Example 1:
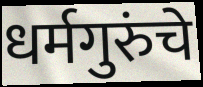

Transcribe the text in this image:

धर्मगुरुंचे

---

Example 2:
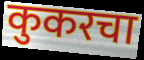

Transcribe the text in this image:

कुकरचा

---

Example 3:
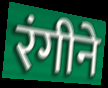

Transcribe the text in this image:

रंगीने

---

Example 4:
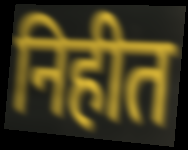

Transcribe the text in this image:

निहीत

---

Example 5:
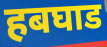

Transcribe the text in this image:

हबघाड